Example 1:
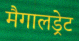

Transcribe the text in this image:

मैगालड्रेट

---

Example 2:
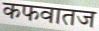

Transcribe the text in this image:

कफवातज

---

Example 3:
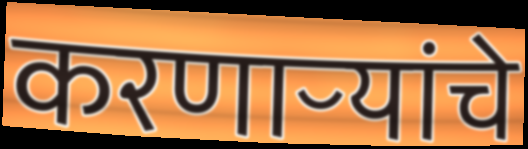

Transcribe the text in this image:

करणाऱ्यांचे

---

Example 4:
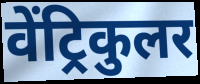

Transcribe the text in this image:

वेंट्रिकुलर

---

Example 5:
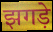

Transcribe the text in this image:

झगड़े